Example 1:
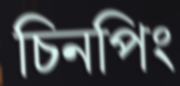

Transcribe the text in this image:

চিনপিং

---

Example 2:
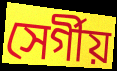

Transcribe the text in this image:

সের্গীয়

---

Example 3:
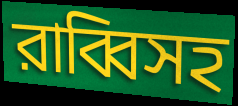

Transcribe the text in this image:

রাব্বিসহ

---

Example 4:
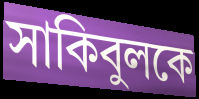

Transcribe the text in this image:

সাকিবুলকে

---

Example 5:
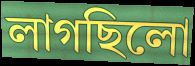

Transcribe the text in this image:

লাগছিলো